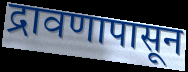
द्रावणापासून